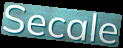
Secale